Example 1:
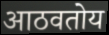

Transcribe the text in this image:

आठवतोय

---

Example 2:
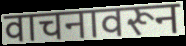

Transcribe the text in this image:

वाचनावरून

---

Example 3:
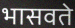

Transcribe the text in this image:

भासवते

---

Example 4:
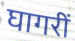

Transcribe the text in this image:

घागरीं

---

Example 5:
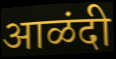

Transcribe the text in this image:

आळंदी